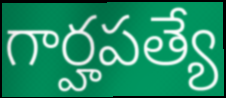
గార్హపత్యే